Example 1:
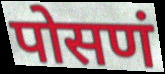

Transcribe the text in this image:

पोसणं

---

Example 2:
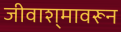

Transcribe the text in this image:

जीवाश्मावरून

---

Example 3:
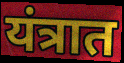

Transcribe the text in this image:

यंत्रात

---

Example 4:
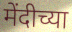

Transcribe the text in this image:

मेंदीच्या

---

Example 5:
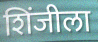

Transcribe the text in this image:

शिंजीला